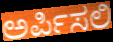
ಅರ್ಪಿಸಲಿ